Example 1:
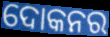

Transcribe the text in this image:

ଦୋକନର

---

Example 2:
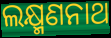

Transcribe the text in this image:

ଲକ୍ଷ୍ମଣନାଥ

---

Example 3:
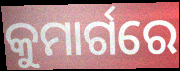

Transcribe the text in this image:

କୁମାର୍ଗରେ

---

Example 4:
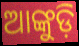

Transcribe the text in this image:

ଆଙ୍କୁଡ଼ି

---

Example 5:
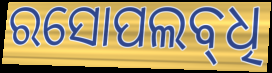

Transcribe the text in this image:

ରସୋପଲବ୍‌ଧି